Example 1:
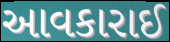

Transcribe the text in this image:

આવકારાઈ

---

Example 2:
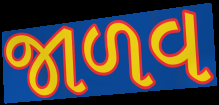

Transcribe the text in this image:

જાળવ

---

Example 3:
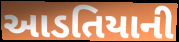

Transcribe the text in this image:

આડતિયાની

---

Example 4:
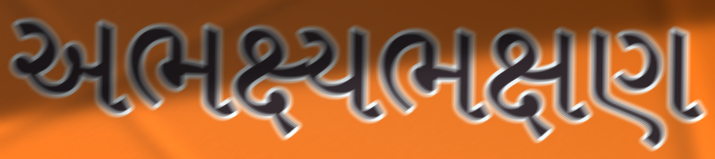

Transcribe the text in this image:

અભક્ષ્યભક્ષણ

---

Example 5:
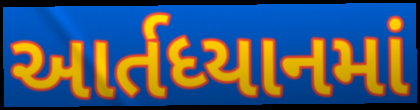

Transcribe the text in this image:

આર્તધ્યાનમાં